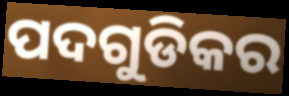
ପଦଗୁଡିକର